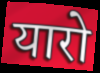
यारो